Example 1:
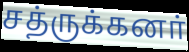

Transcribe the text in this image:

சத்ருக்கனர்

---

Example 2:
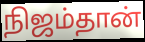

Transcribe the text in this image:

நிஜம்தான்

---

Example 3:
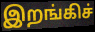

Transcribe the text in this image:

இறங்கிச்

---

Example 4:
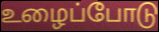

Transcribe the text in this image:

உழைப்போடு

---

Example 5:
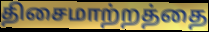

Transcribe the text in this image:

திசைமாற்றத்தை